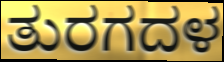
ತುರಗದಳ